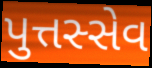
પુત્તસ્સેવ